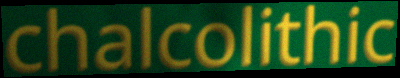
chalcolithic